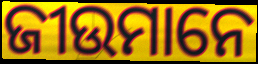
ଜୀଉମାନେ